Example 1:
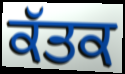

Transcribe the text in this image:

ਕੱਤਕ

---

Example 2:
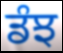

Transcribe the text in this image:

ਡੰਝ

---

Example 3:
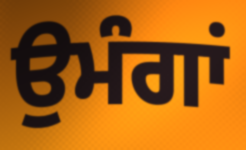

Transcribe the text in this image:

ਉਮੰਗਾਂ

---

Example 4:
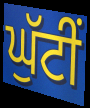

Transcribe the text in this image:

ਘੁੱਟੀਂ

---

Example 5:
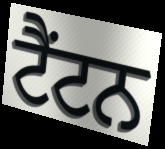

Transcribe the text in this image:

ਟੈਂਟਨ